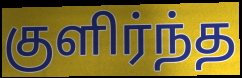
குளிர்ந்த